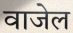
वाजेल